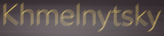
Khmelnytsky